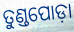
ତୁଣ୍ଡପୋଡ଼ା